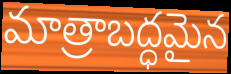
మాత్రాబద్ధమైన